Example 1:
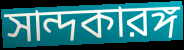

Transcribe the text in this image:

সান্দকারঙ্গ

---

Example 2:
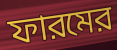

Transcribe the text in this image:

ফারমের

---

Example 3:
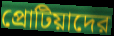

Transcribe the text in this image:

প্রোটিয়াদের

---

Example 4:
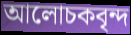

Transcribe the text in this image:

আলোচকবৃন্দ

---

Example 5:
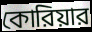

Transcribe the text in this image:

কোরিয়ার